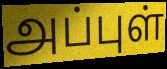
அப்புள்